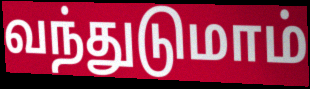
வந்துடுமாம்